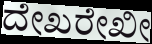
ದೇಖರೇಖೀ